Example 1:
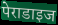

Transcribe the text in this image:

पेराडाइज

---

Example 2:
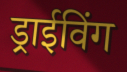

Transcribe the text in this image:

ड्राईविंग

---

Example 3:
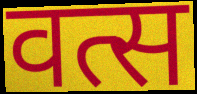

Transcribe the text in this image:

वत्स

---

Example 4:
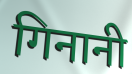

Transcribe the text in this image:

गिनानी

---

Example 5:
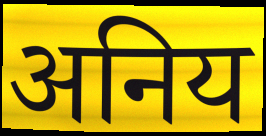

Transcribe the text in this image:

अनिय